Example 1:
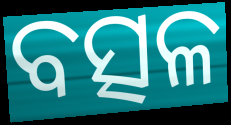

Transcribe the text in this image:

ବତ୍ସଳ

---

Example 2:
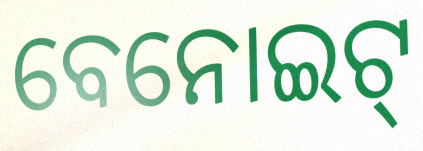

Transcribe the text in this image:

ବେନୋଇଟ୍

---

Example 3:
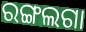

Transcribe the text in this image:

ରଙ୍ଗଲଗା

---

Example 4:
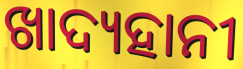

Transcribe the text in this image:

ଖାଦ୍ୟହାନୀ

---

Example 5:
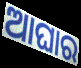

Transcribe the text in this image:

ଆଘାର